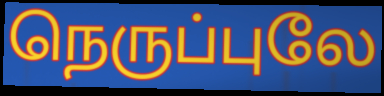
நெருப்புலே